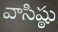
వాసిష్ఠు